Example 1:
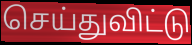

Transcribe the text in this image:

செய்துவிட்டு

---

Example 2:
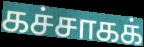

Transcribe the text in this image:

கச்சாகக்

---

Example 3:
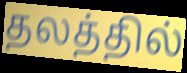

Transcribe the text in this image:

தலத்தில்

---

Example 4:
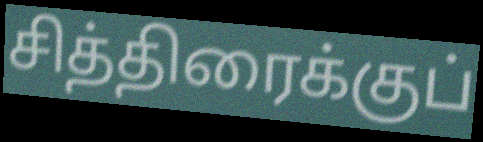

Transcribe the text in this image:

சித்திரைக்குப்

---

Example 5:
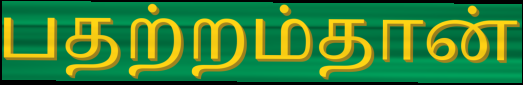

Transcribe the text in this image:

பதற்றம்தான்